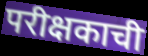
परीक्षकाची